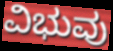
ವಿಭುವು